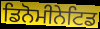
ਡਿਨੋਮੀਨੇਟਿਡ